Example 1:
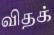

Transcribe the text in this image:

விதக்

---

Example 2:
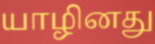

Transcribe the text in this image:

யாழினது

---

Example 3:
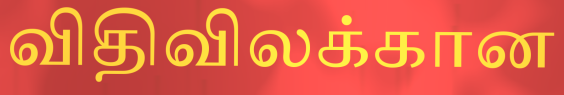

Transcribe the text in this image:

விதிவிலக்கான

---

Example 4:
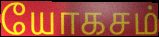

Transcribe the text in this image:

யோகசம்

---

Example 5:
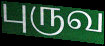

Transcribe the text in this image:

புருவ